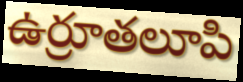
ఉర్రూతలూపి